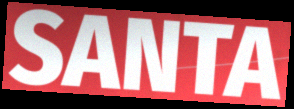
SANTA